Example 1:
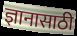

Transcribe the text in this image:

ज्ञानासाठी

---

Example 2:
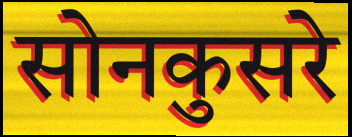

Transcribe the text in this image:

सोनकुसरे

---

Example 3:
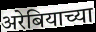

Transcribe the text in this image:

अरेबियाच्या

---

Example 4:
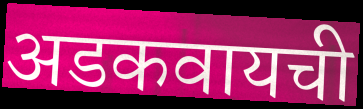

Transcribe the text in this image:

अडकवायची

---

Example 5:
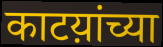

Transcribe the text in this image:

काटय़ांच्या